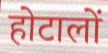
होटालों